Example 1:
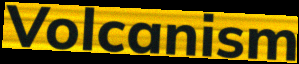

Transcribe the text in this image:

Volcanism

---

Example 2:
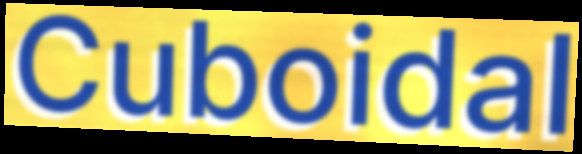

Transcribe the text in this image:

Cuboidal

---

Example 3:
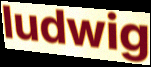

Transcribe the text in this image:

ludwig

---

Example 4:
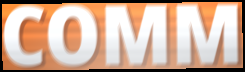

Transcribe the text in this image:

COMM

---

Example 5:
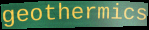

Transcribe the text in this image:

geothermics